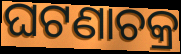
ଘଟଣାଚକ୍ର